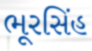
ભૂરસિંહ